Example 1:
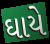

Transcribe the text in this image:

ઘાયે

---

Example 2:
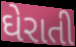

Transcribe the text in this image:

ઘેરાતી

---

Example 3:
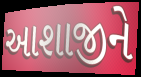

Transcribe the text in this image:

આશાજીને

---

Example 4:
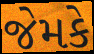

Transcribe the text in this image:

જેમકે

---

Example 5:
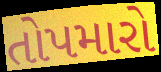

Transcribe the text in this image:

તોપમારો